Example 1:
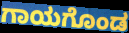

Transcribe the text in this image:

ಗಾಯಗೊಂಡ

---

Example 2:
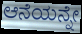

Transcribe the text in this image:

ಆನೆಯನ್ನೇ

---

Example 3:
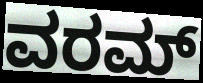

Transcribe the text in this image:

ವರಮ್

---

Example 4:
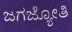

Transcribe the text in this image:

ಜಗಜ್ಯೋತಿ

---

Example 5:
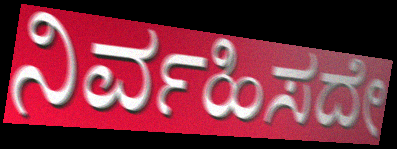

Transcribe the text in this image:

ನಿರ್ವಹಿಸದೇ